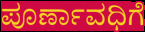
ಪೂರ್ಣಾವಧಿಗೆ